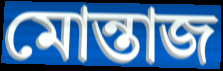
মোন্তাজ